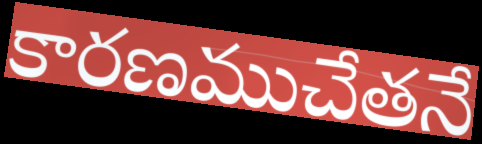
కారణముచేతనే